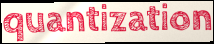
quantization